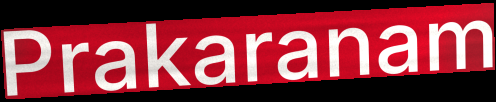
Prakaranam